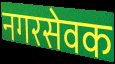
नगरसेवक